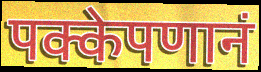
पक्केपणानं